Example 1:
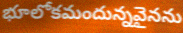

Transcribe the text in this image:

భూలోకమందున్నవైనను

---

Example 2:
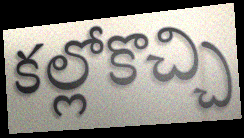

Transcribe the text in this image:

కల్లోకొచ్చి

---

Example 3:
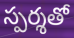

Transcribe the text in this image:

స్పర్శతో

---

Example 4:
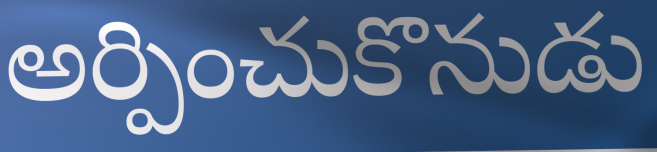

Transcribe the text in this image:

అర్పించుకొనుడు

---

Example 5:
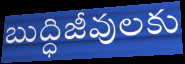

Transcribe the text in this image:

బుద్ధిజీవులకు